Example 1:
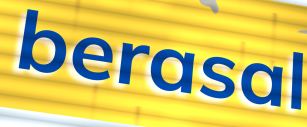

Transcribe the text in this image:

berasal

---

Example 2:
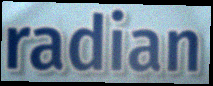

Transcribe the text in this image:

radian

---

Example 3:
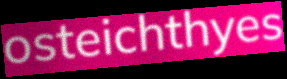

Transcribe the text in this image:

osteichthyes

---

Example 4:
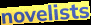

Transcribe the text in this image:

novelists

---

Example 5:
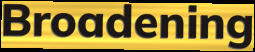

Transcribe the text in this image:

Broadening